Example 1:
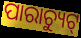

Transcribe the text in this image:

ପାରାଚ୍ୟୁଟ୍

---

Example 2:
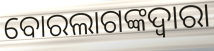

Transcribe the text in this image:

ବୋରଲାଗଙ୍କଦ୍ୱାରା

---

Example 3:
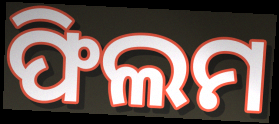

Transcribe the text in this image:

ଫିଲମ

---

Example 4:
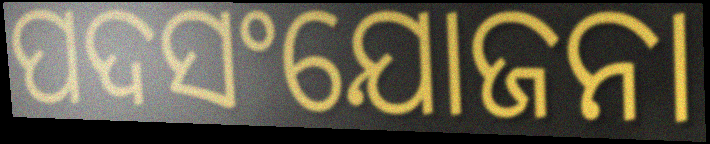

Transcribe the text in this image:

ପଦସଂଯୋଜନା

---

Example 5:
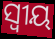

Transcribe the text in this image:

ସ୍ୱୀୟ